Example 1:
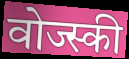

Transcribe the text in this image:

वोज्स्की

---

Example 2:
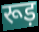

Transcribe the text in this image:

रूड़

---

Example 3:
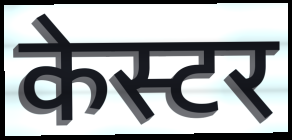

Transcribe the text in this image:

केस्टर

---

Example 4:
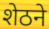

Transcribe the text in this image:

शेठने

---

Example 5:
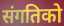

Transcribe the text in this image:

संगतिको